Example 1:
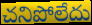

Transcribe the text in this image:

చనిపోలేదు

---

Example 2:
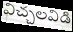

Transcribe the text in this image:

విచ్చలవిడి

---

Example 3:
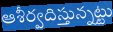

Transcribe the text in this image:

ఆశీర్వదిస్తున్నట్టు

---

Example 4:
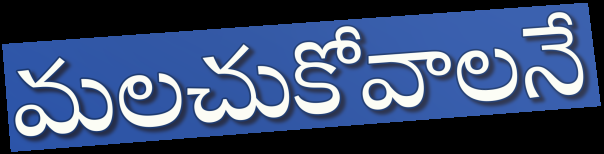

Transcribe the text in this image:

మలచుకోవాలనే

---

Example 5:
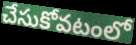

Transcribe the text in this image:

చేసుకోవటంలో